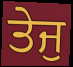
ਤੇਜੁ